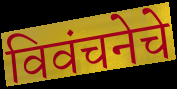
विवंचनेचे